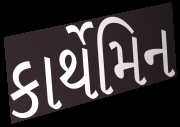
કાર્થેમિન